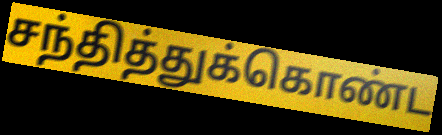
சந்தித்துக்கொண்ட